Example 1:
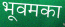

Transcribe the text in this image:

भूवमका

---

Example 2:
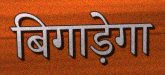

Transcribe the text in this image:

बिगाड़ेगा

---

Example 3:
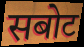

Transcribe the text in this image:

सबोट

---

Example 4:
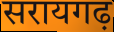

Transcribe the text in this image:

सरायगढ़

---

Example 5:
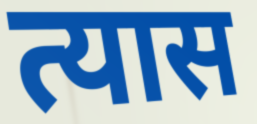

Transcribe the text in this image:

त्यास